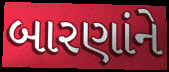
બારણાંને